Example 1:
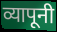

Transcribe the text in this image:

व्यापूनी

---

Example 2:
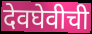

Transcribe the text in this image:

देवघेवीची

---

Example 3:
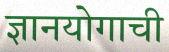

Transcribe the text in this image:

ज्ञानयोगाची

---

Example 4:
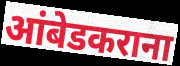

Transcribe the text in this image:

आंबेडकराना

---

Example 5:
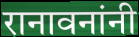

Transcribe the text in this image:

रानावनांनी